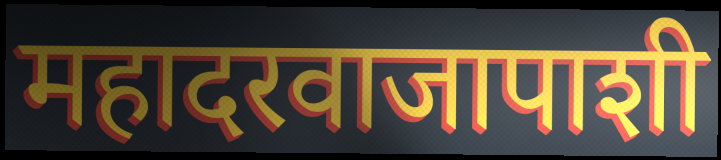
महादरवाजापाशी